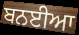
ਬਨਈਆ